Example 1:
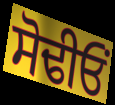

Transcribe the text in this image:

ਸੋਢੀਓਂ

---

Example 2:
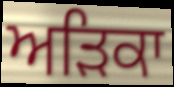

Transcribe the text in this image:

ਅੜਿਕਾ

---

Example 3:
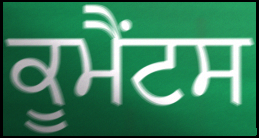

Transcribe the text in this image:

ਕੂਮੈਂਟਸ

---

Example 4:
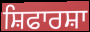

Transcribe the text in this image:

ਸ਼ਿਫਾਰਸ਼ਾ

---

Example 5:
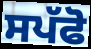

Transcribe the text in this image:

ਸਪੱਫੋ